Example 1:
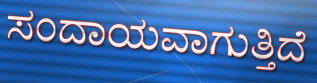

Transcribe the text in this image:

ಸಂದಾಯವಾಗುತ್ತಿದೆ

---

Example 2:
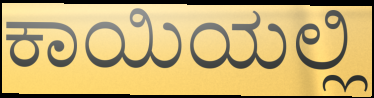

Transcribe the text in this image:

ಕಾಯಿಯಲ್ಲಿ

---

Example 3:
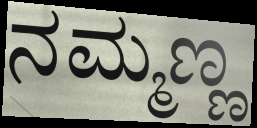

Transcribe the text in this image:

ನಮ್ಮಣ್ಣ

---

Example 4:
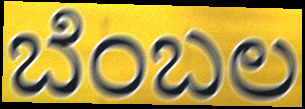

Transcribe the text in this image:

ಬೆಂಬಲ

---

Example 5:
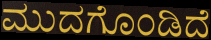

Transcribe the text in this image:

ಮುದಗೊಂಡಿದೆ